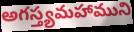
అగస్త్యమహాముని